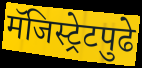
मॅजिस्ट्रेटपुढे